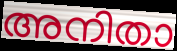
അനിതാ